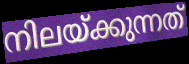
നിലയ്ക്കുന്നത്